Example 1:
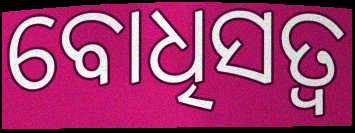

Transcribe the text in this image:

ବୋଧିସତ୍ବ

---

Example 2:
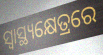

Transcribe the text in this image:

ସ୍ୱାସ୍ଥ୍ୟକ୍ଷେତ୍ରରେ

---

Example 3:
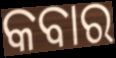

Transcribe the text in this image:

କବାର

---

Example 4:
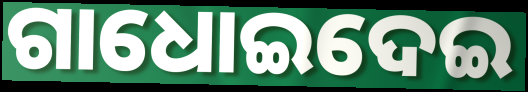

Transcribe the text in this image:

ଗାଧୋଇଦେଇ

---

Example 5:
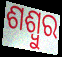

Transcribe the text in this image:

ଶଶ୍ୱୁର